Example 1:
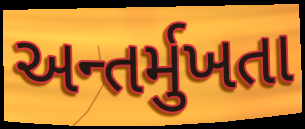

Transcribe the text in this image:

અન્તર્મુખતા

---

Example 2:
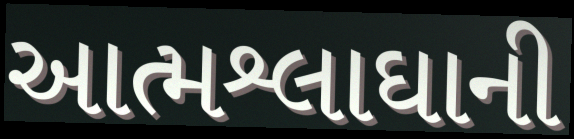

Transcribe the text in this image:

આત્મશ્લાઘાની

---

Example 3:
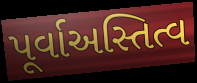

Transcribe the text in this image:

પૂર્વાઅસ્તિત્વ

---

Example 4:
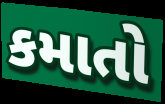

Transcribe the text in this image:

કમાતો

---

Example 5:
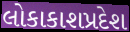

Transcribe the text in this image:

લોકાકાશપ્રદેશ